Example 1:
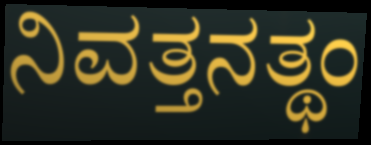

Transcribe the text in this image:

ನಿವತ್ತನತ್ಥಂ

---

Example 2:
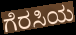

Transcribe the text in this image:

ಗೆರಸಿಯ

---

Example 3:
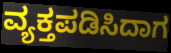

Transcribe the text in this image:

ವ್ಯಕ್ತಪಡಿಸಿದಾಗ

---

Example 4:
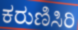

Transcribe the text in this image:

ಕರುಣಿಸಿರಿ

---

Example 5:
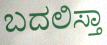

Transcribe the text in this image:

ಬದಲಿಸ್ತಾ